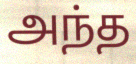
அந்த